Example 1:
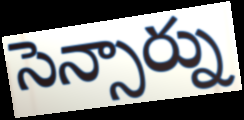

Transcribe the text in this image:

సెన్సార్ను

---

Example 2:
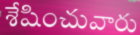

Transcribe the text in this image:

శేషించువారు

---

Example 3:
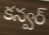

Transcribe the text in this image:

కన్వర్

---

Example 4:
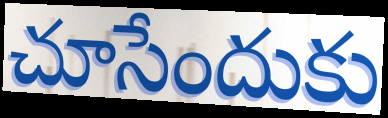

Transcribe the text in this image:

చూసేందుకు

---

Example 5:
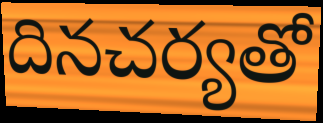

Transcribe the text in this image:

దినచర్యతో